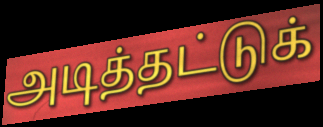
அடித்தட்டுக்